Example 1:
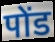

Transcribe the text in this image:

पोंड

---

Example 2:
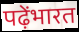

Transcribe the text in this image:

पढ़ेंभारत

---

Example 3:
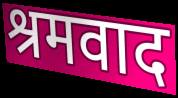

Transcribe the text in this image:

श्रमवाद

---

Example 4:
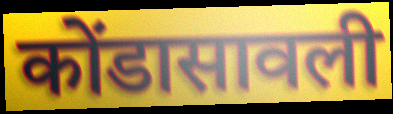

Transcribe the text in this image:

कोंडासावली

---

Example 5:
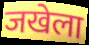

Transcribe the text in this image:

जखेला